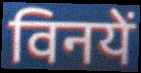
विनयें